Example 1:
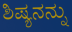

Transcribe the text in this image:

ಶಿಷ್ಯನನ್ನು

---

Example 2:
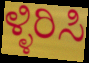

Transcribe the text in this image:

ಳ್ಳಿರಿಸಿ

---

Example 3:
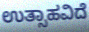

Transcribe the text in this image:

ಉತ್ಸಾಹವಿದೆ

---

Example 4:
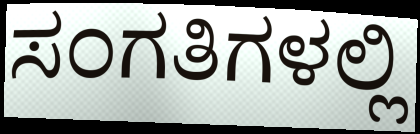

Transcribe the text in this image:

ಸಂಗತಿಗಳಲ್ಲಿ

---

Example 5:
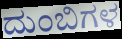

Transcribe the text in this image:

ದುಂಬಿಗಳ